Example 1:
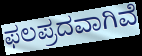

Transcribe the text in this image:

ಫಲಪ್ರದವಾಗಿವೆ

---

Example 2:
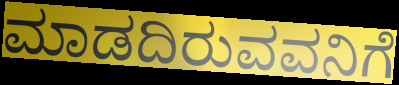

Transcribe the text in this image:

ಮಾಡದಿರುವವನಿಗೆ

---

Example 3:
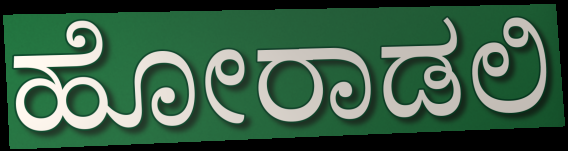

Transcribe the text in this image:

ಹೋರಾಡಲಿ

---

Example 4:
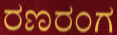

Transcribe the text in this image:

ರಣರಂಗ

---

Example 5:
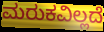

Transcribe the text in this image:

ಮರುಕವಿಲ್ಲದೆ